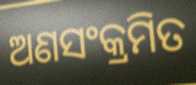
ଅଣସଂକ୍ରମିତ